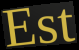
Est